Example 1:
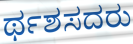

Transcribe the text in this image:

ರ್ಥಶಸದರು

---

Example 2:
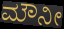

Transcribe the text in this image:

ಮೌನೀ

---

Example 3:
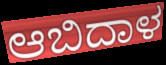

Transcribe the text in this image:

ಆಬಿದಾಳ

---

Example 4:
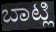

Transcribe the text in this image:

ಬಾಟ್ಲಿ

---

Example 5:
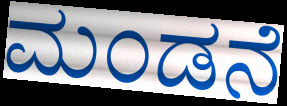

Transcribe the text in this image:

ಮಂಡನೆ